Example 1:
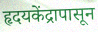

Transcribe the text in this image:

हृदयकेंद्रापासून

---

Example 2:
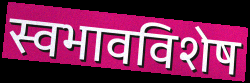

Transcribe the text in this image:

स्वभावविशेष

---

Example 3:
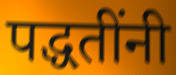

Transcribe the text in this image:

पद्धतींनी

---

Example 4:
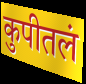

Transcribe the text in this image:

कुपीतलं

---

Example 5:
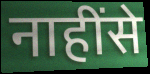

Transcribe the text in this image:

नाहींसे